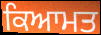
ਕਿਆਮਤ